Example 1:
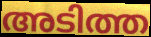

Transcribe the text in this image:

അടിത്ത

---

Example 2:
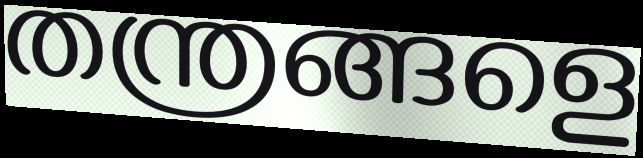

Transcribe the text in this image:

തന്ത്രങ്ങളെ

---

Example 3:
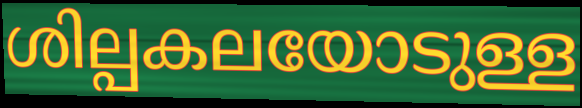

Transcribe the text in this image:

ശില്പകലയോടുള്ള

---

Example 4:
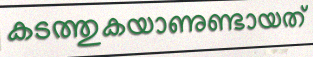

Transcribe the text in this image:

കടത്തുകയാണുണ്ടായത്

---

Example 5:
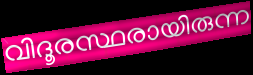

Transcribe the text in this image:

വിദൂരസ്ഥരായിരുന്ന